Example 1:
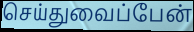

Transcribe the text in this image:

செய்துவைப்பேன்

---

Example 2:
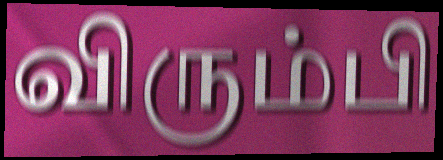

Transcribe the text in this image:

விரும்பி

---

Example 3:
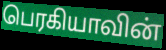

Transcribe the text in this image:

பெரகியாவின்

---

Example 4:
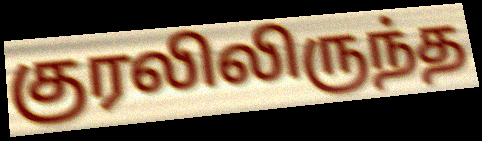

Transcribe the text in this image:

குரலிலிருந்த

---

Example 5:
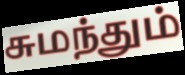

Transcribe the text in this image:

சுமந்தும்